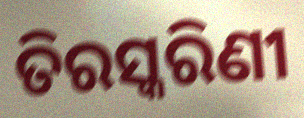
ତିରସ୍କରିଣୀ